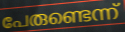
പേരുണ്ടെന്ന്